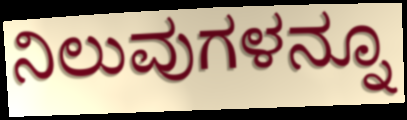
ನಿಲುವುಗಳನ್ನೂ